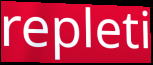
repleti